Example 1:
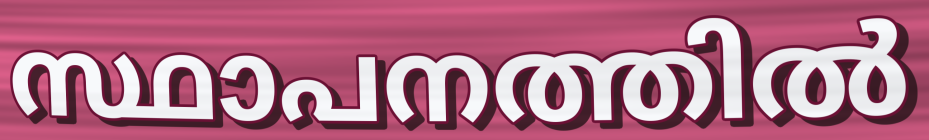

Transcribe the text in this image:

സ്ഥാപനത്തിൽ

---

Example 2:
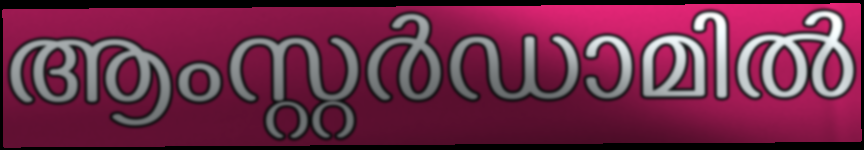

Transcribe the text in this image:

ആംസ്റ്റർഡാമിൽ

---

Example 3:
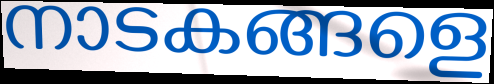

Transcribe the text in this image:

നാടകങ്ങളെ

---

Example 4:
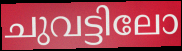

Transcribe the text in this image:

ചുവട്ടിലോ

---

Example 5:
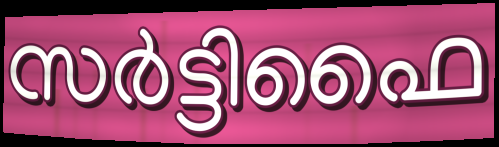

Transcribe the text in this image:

സർട്ടിഫൈ